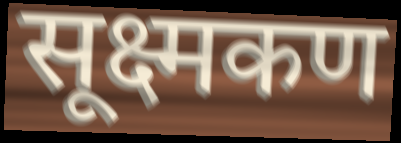
सूक्ष्मकण